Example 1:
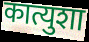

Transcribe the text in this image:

कात्युशा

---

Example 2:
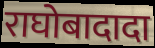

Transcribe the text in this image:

राघोबादादा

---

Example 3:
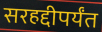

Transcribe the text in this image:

सरहद्दीपर्यंत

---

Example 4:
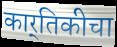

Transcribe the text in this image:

कार्तिकीचा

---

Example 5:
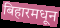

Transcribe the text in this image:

बिहारमधून